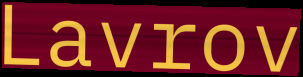
Lavrov